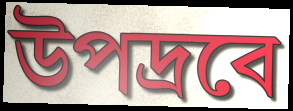
উপদ্রবে